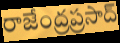
రాజేంద్రప్రసాద్